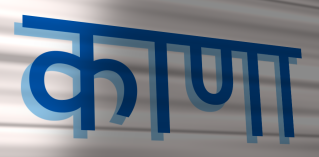
काणा